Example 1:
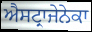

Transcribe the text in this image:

ਐਸਟ੍ਰਾਜੇਨੇਕਾ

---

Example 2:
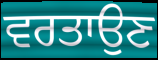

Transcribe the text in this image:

ਵਰਤਾਉਣ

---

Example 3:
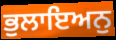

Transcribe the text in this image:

ਭੁਲਾਇਅਨੁ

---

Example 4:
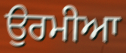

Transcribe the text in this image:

ਉਰਮੀਆ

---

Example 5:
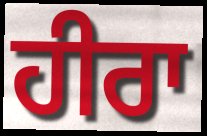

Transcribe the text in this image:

ਹੀਰਾ